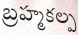
బ్రహ్మకల్ప